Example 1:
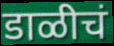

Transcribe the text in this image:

डाळीचं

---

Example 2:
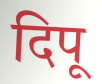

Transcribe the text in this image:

दिपू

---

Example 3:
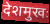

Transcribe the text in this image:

देशमुखः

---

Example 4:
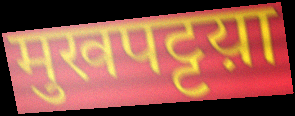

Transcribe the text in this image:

मुखपट्टय़ा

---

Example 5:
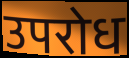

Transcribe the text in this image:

उपरोध